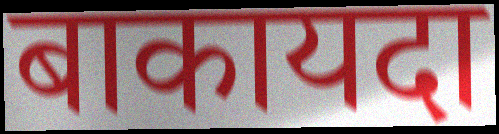
बाकायदा